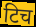
टिच